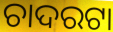
ଚାଦରଟା